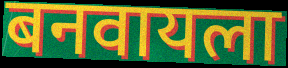
बनवायला